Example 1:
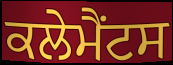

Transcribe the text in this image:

ਕਲੇਮੈਂਟਸ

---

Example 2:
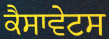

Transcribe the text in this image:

ਕੈਸਾਵੇਟਸ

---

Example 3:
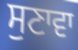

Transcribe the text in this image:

ਸੁਣਾਵਾ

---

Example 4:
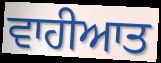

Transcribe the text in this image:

ਵਾਹੀਆਤ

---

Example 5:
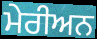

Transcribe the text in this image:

ਮੇਰੀਅਨ